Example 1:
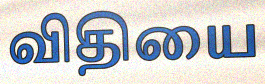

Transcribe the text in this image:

விதியை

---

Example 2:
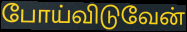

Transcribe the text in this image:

போய்விடுவேன்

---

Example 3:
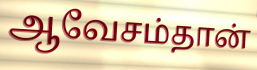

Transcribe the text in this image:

ஆவேசம்தான்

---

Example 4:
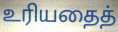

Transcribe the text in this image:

உரியதைத்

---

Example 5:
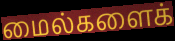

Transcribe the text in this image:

மைல்களைக்